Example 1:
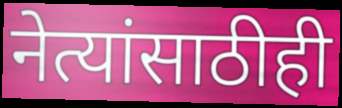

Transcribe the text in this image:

नेत्यांसाठीही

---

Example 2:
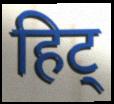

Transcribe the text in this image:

हिट्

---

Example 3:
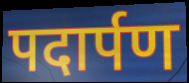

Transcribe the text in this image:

पदार्पण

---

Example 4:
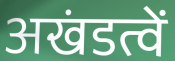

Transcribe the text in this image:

अखंडत्वें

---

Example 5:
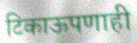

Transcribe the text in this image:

टिकाऊपणाही